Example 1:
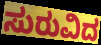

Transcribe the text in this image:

ಸುರುವಿದ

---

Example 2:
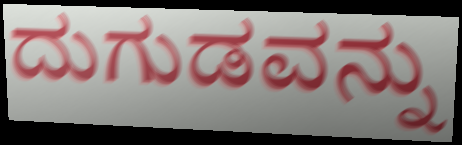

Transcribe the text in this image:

ದುಗುಡವನ್ನು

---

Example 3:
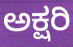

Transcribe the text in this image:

ಅಕ್ಷರಿ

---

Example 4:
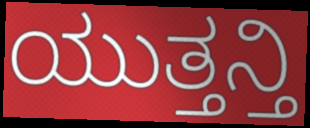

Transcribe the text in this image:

ಯುತ್ತನ್ತಿ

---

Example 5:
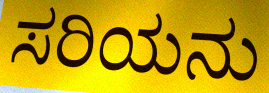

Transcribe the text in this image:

ಸರಿಯನು